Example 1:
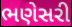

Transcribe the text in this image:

ભણેસરી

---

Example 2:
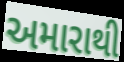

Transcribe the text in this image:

અમારાથી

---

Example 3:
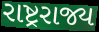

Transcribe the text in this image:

રાષ્ટ્રરાજ્ય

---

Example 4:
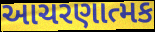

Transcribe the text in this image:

આચરણાત્મક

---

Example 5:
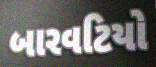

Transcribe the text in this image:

બારવટિયો